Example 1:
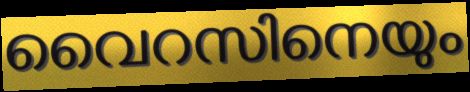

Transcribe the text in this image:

വൈറസിനെയും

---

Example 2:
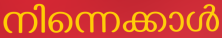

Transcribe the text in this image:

നിന്നെക്കാൾ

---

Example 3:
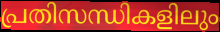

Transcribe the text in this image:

പ്രതിസന്ധികളിലും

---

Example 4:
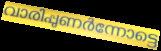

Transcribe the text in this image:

വാരിപ്പുണർന്നോട്ടെ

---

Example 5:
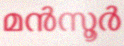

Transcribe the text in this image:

മൻസൂർ